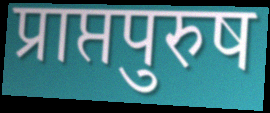
प्राप्तपुरुष